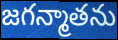
జగన్మాతను